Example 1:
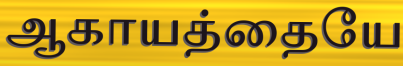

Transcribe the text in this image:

ஆகாயத்தையே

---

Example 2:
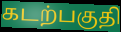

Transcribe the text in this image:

கடற்பகுதி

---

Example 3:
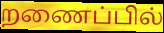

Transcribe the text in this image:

றணைப்பில்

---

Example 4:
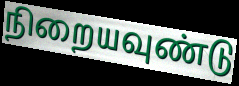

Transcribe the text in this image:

நிறையவுண்டு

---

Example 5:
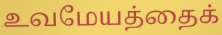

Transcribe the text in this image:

உவமேயத்தைக்